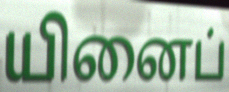
யினைப்